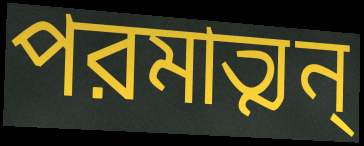
পরমাত্মন্